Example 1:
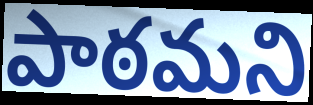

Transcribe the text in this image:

పాఠమని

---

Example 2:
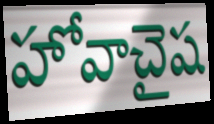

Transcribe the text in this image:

హోవాచైష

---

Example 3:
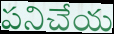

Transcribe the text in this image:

పనిచేయ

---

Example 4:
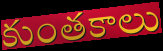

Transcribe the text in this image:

కుంతకాలు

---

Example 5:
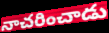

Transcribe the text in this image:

నాచరించాడు